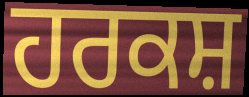
ਹਰਕਸ਼